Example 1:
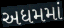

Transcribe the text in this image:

અધમમાં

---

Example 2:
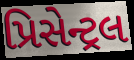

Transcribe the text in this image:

પ્રિસેન્ટ્રલ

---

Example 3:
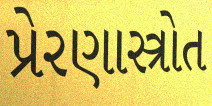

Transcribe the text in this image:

પ્રેરણાસ્ત્રોત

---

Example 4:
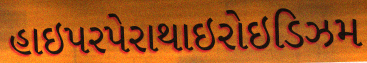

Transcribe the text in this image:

હાઇપરપેરાથાઇરોઇડિઝમ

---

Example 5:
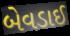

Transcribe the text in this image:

બેવડાઈ